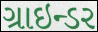
ગ્રાઇન્ડર